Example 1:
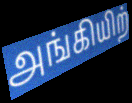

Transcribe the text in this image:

அங்கியிற்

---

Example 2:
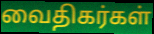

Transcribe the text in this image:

வைதிகர்கள்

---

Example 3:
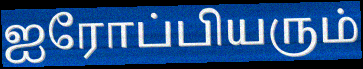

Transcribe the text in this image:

ஐரோப்பியரும்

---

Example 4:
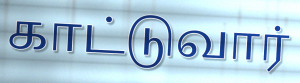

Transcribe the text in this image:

காட்டுவார்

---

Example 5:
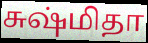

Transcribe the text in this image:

சுஷ்மிதா